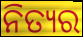
ନିତ୍ୟର